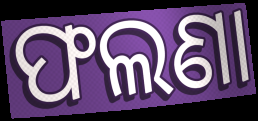
ଫଲଣା